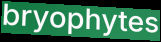
bryophytes